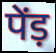
पेंड़